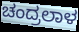
ಚಂದ್ರಲಾಳ